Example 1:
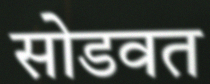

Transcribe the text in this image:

सोडवत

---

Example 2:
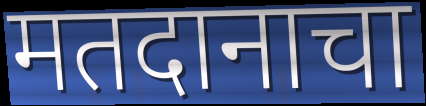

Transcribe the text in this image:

मतदानाचा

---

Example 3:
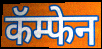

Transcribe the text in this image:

कॅम्फेन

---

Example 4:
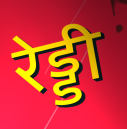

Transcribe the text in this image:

रेड्डी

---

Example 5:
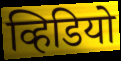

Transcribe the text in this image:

व्हिडियो